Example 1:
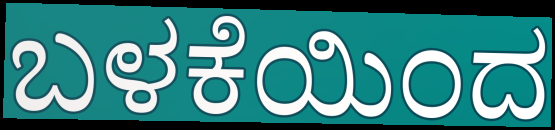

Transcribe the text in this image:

ಬಳಕೆಯಿಂದ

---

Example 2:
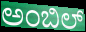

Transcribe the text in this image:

ಅಂಬಿಲ್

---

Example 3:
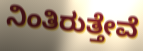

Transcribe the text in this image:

ನಿಂತಿರುತ್ತೇವೆ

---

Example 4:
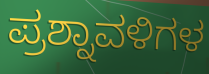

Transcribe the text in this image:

ಪ್ರಶ್ನಾವಳಿಗಳ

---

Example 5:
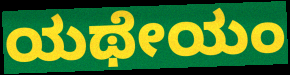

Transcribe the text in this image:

ಯಥೇಯಂ